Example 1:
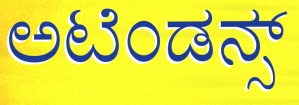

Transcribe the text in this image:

ಅಟೆಂಡನ್ಸ್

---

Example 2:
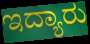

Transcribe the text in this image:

ಇದ್ಯಾರು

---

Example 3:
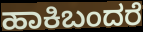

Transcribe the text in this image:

ಹಾಕಿಬಂದರೆ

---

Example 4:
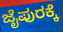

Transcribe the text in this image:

ಜೈಪುರಕ್ಕೆ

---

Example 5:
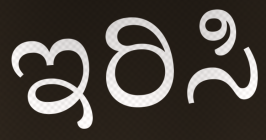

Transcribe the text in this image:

ಇರಿಸಿ